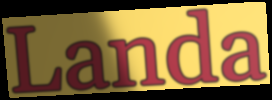
Landa